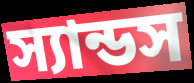
স্যান্ডস